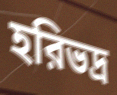
হরিভদ্র